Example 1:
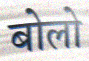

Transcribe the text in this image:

बोलो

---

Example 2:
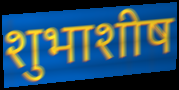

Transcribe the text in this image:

शुभाशीष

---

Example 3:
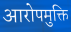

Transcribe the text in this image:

आरोपमुक्ति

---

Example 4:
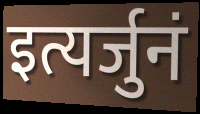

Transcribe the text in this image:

इत्यर्जुनं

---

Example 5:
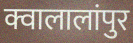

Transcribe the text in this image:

क्वालालांपुर